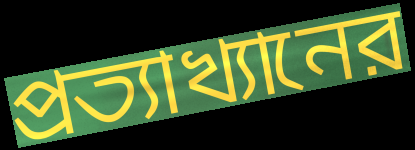
প্রত্যাখ্যানের